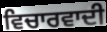
ਵਿਚਾਰਵਾਦੀ